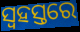
ସ୍ୱହସ୍ତରେ